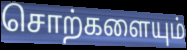
சொற்களையும்